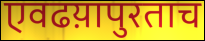
एवढय़ापुरताच